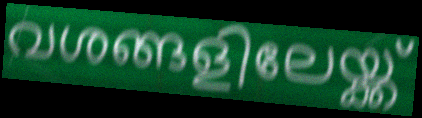
വശങ്ങളിലേയ്ക്ക്